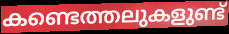
കണ്ടെത്തലുകളുണ്ട്